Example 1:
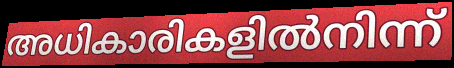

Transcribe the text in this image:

അധികാരികളിൽനിന്ന്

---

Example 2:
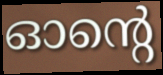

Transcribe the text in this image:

ഓന്റെ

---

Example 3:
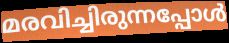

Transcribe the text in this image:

മരവിച്ചിരുന്നപ്പോൾ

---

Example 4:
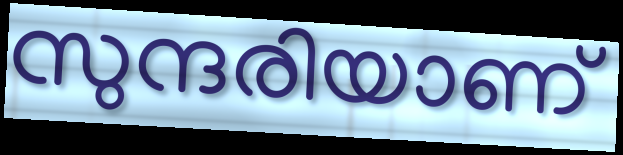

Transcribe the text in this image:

സുന്ദരിയാണ്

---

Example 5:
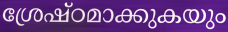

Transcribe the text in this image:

ശ്രേഷ്ഠമാക്കുകയും